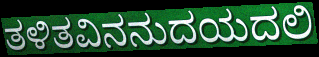
ತಳಿತವಿನನುದಯದಲಿ